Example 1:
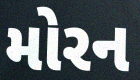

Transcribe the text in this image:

મોરન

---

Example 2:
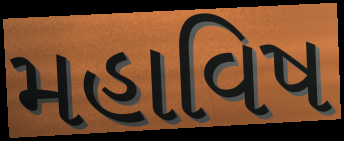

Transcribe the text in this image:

મહાવિષ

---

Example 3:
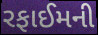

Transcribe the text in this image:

રફાઈમની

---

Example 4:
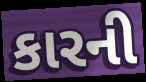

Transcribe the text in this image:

કારની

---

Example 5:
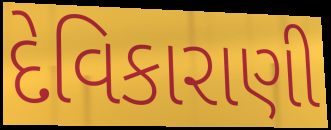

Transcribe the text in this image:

દેવિકારાણી